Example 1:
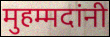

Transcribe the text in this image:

मुहम्मदांनी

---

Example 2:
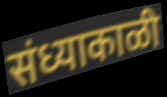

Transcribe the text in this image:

संध्याकाळी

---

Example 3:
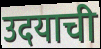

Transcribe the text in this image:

उदयाची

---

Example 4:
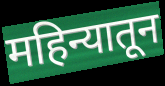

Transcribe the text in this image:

महिन्यातून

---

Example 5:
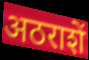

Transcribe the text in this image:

अठराशें